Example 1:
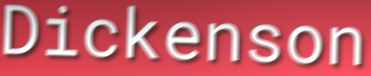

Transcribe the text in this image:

Dickenson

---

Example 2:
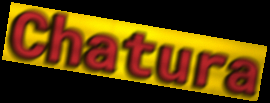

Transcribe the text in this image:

Chatura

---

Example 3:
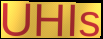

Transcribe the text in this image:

UHIs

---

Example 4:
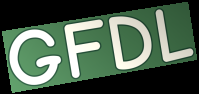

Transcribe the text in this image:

GFDL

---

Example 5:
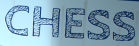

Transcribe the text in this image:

CHESS